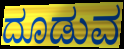
ದೂಡುವ